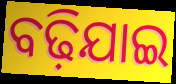
ବଢ଼ିଯାଇ